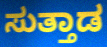
ಸುತ್ತಾಡ